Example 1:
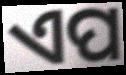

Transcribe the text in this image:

ଏପ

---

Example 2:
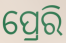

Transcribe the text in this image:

ପ୍ରେରି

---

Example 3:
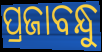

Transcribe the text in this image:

ପ୍ରଜାବନ୍ଧୁ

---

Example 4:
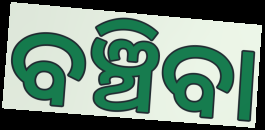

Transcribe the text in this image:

ବଞ୍ଚିବା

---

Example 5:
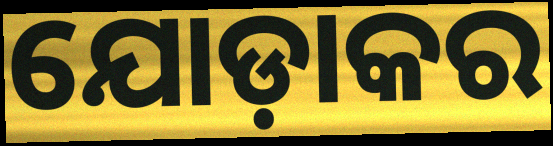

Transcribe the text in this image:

ଯୋଡ଼ାକର